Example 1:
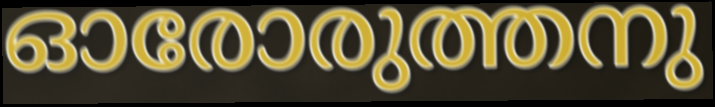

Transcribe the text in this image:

ഓരോരുത്തനു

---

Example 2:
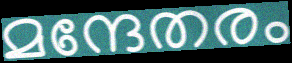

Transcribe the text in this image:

മന്ദേതരം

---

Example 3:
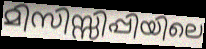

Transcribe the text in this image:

മിസിസ്സിപ്പിയിലെ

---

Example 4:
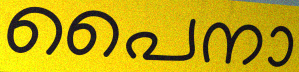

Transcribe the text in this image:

പൈനാ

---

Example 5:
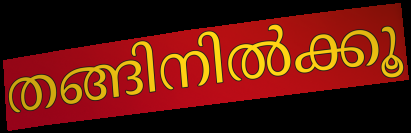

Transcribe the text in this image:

തങ്ങിനിൽക്കൂ